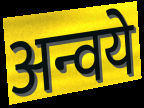
अन्‍वये